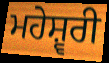
ਮਹੇਸ਼੍ਵਰੀ